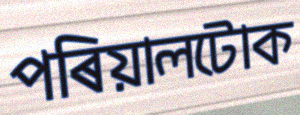
পৰিয়ালটোক